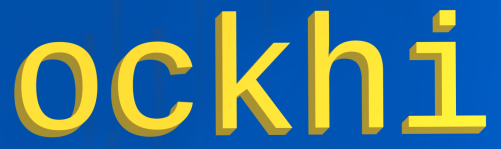
ockhi